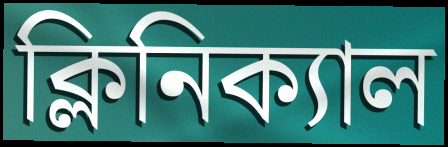
ক্লিনিক্যাল